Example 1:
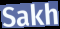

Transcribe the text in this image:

Sakh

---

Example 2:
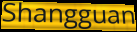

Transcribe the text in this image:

Shangguan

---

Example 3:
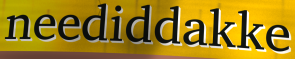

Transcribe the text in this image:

neediddakke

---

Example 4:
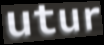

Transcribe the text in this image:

utur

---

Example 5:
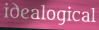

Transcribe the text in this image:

idealogical